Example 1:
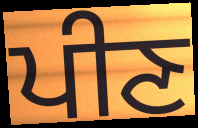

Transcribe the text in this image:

ਪੀਣ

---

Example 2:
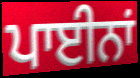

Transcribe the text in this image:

ਪਾਈਨਾਂ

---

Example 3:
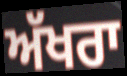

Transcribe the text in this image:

ਅੱਖਰਾ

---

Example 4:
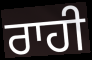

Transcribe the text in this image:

ਰਾਹੀ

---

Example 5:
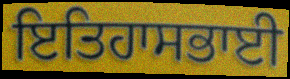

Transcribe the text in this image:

ਇਤਿਹਾਸਭਾਈ